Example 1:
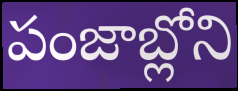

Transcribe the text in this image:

పంజాబ్లోని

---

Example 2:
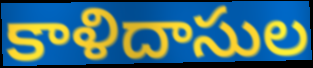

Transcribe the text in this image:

కాళిదాసుల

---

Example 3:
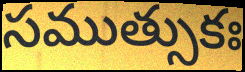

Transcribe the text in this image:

సముత్సుకః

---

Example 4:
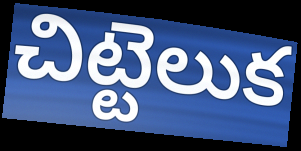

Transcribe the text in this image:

చిట్టెలుక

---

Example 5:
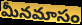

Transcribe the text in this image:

మీనమాసం